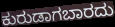
ಕುರುಡಾಗಬಾರದು